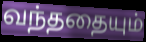
வந்ததையும்